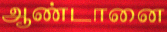
ஆண்டானை